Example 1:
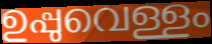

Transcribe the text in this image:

ഉപ്പുവെള്ളം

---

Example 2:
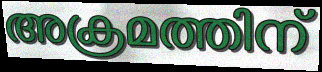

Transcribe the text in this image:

അക്രമത്തിന്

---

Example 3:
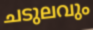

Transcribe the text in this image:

ചടുലവും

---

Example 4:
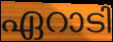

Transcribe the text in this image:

ഏറാടി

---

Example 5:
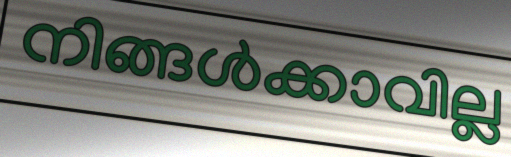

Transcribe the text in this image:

നിങ്ങൾക്കാവില്ല